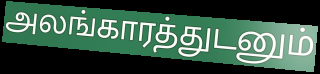
அலங்காரத்துடனும்